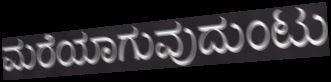
ಮರೆಯಾಗುವುದುಂಟು